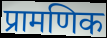
प्रामणिक